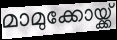
മാമുക്കോയ്ക്ക്